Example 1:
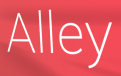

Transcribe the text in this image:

Alley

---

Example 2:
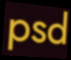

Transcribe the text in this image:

psd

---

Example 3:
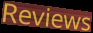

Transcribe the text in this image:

Reviews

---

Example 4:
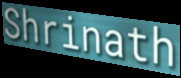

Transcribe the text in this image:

Shrinath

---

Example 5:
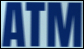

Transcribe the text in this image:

ATM